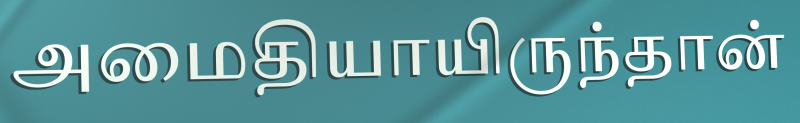
அமைதியாயிருந்தான்